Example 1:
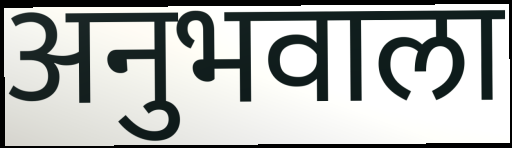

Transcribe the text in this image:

अनुभवाला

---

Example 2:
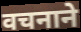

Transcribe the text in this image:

वचनाने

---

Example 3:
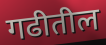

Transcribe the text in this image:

गढीतील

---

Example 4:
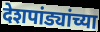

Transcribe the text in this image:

देशपांड्यांच्या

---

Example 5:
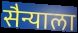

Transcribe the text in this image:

सैन्याला